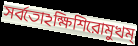
সর্বতোঽক্ষিশিরোমুখম্